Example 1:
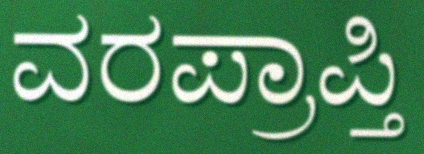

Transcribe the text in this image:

ವರಪ್ರಾಪ್ತಿ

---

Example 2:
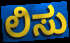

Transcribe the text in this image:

ಲಿಸು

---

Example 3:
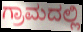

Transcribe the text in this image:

ಗ್ರಾಮದಲ್ಲಿ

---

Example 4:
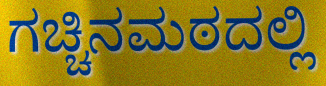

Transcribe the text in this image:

ಗಚ್ಚಿನಮಠದಲ್ಲಿ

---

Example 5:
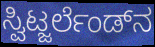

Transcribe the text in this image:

ಸ್ವಿಟ್ಜರ್ಲೆಂಡ್‌ನ